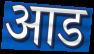
आड